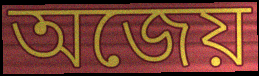
অজেয়